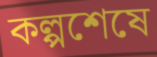
কল্পশেষে